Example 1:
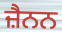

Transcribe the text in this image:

ਜ਼ੈਨਨ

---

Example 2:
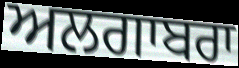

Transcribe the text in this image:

ਅਲਗਾਬਰਾ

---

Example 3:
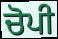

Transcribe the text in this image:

ਚੋਪੀ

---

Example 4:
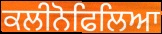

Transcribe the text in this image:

ਕਲੀਨੋਫਿਲਿਆ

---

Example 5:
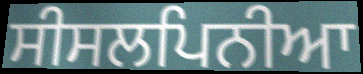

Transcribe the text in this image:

ਸੀਸਲਪਿਨੀਆ